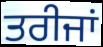
ਤਰੀਜਾਂ